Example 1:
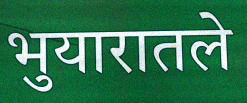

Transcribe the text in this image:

भुयारातले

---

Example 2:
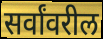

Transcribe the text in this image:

सर्वांवरील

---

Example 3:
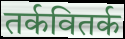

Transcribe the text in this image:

तर्कवितर्क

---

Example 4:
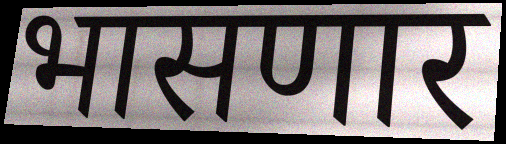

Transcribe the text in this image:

भासणार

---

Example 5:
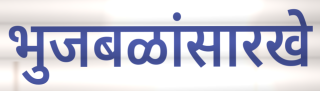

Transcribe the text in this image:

भुजबळांसारखे